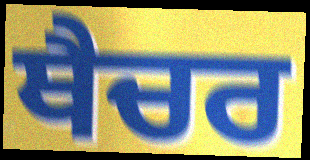
ਥੈਚਰ